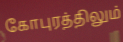
கோபுரத்திலும்